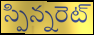
స్పిన్నరెట్